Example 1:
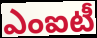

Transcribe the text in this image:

ఎంఐటీ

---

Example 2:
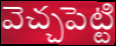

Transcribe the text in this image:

వెచ్చపెట్టి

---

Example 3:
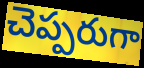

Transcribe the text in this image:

చెప్పరుగా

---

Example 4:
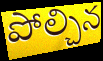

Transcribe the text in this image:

పోల్చిన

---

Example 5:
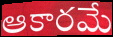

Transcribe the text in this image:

ఆకారమే